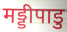
मड्डीपाडु